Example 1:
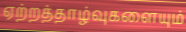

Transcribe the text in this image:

ஏற்றத்தாழ்வுகளையும்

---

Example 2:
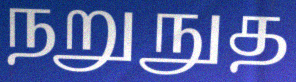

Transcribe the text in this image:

நறுநுத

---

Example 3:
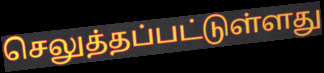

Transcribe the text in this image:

செலுத்தப்பட்டுள்ளது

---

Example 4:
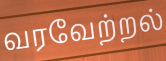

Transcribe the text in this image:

வரவேற்றல்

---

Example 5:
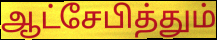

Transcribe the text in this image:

ஆட்சேபித்தும்